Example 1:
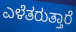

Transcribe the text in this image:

ಎಳೆತರುತ್ತಾರೆ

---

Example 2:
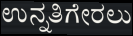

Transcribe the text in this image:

ಉನ್ನತಿಗೇರಲು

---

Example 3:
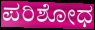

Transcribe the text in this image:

ಪರಿಶೋಧ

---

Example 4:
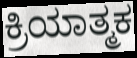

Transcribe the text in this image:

ಕ್ರಿಯಾತ್ಮಕ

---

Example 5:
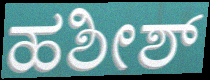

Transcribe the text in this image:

ಹಶೀಶ್